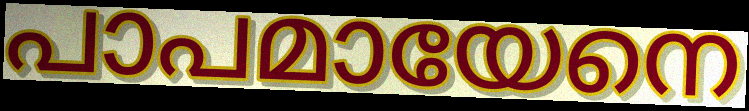
പാപമായേനെ